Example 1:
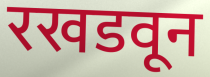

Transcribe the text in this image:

रखडवून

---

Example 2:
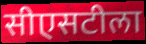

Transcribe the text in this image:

सीएसटीला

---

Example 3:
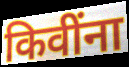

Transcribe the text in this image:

किवींना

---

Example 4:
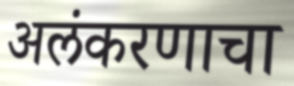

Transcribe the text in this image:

अलंकरणाचा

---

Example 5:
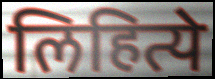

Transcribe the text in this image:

लिहित्ये